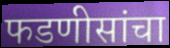
फडणीसांचा